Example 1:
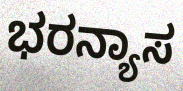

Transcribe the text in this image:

ಭರನ್ಯಾಸ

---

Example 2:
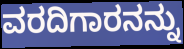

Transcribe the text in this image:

ವರದಿಗಾರನನ್ನು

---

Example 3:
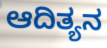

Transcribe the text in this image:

ಆದಿತ್ಯನ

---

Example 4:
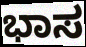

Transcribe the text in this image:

ಭಾಸ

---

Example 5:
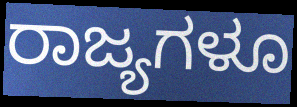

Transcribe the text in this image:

ರಾಜ್ಯಗಳೂ